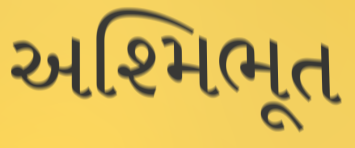
અશ્મિભૂત